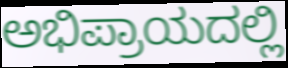
ಅಭಿಪ್ರಾಯದಲ್ಲಿ